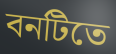
বনটিতে